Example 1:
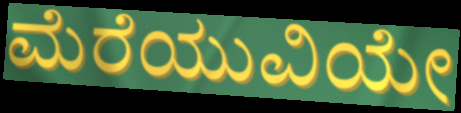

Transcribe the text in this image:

ಮೆರೆಯುವಿಯೇ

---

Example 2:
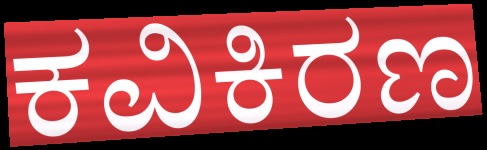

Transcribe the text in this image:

ಕವಿಕಿರಣ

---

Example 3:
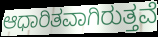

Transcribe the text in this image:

ಆಧಾರಿತವಾಗಿರುತ್ತವೆ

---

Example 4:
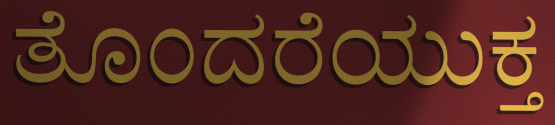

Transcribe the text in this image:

ತೊಂದರೆಯುಕ್ತ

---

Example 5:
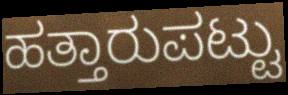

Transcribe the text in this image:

ಹತ್ತಾರುಪಟ್ಟು